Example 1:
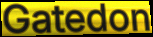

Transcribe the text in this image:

Gatedon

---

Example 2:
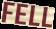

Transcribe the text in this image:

FELL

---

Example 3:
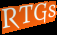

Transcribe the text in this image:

RTGs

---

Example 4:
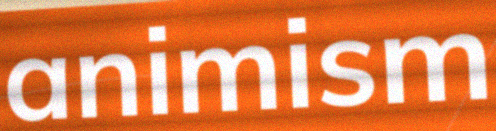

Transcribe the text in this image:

animism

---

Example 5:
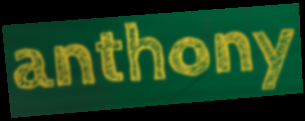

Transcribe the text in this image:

anthony